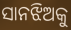
ସାନଝିଅକୁ